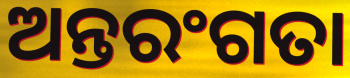
ଅନ୍ତରଂଗତା